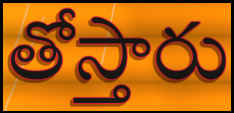
తోస్తారు